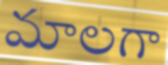
మాలగా